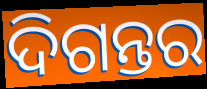
ଦିଗନ୍ତର